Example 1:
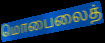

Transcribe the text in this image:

மொபைலைத்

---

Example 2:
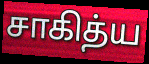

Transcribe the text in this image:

சாகித்ய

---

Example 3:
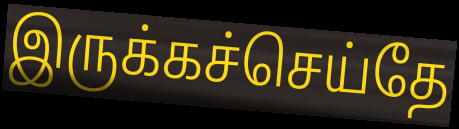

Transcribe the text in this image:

இருக்கச்செய்தே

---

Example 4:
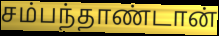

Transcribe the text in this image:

சம்பந்தாண்டான்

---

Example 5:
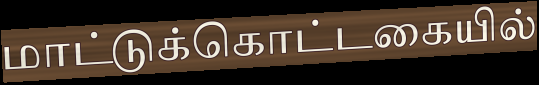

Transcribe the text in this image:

மாட்டுக்கொட்டகையில்